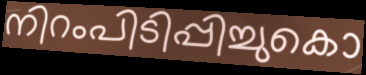
നിറംപിടിപ്പിച്ചുകൊ